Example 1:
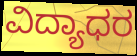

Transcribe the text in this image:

ವಿದ್ಯಾಧರ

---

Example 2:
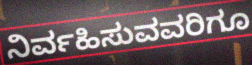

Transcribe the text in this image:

ನಿರ್ವಹಿಸುವವರಿಗೂ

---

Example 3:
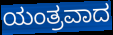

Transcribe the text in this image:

ಯಂತ್ರವಾದ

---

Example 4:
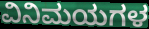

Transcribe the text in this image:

ವಿನಿಮಯಗಳ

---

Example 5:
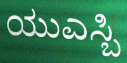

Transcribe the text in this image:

ಯುಎಸ್ಬಿ